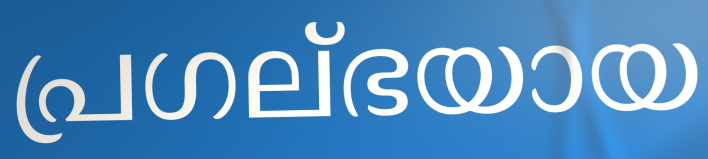
പ്രഗല്ഭയായ